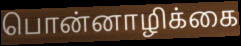
பொன்னாழிக்கை